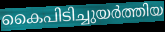
കൈപിടിച്ചുയർത്തിയ